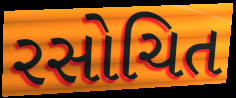
રસોચિત